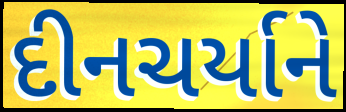
દીનચર્યાને